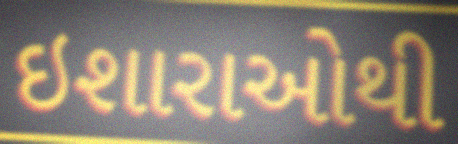
ઇશારાઓથી